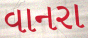
વાનરા